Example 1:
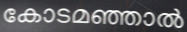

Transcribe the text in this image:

കോടമഞ്ഞാൽ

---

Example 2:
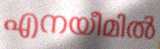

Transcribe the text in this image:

എനയീമിൽ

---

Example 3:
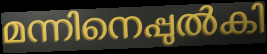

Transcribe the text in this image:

മന്നിനെപ്പുൽകി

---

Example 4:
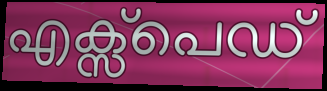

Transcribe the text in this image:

എക്സ്പെഡ്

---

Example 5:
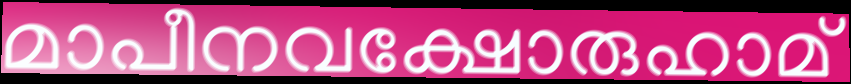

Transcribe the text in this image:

മാപീനവക്ഷോരുഹാമ്